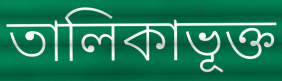
তালিকাভূক্ত